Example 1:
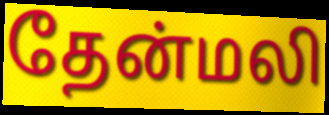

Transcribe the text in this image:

தேன்மலி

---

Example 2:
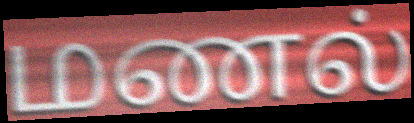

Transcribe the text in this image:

மணல்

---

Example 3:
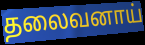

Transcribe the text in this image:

தலைவனாய்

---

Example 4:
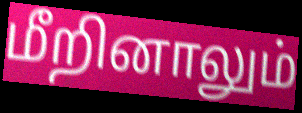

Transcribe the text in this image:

மீறினாலும்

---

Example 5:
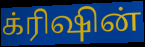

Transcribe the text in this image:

க்ரிஷின்